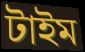
টাইম